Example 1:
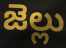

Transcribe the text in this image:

జెల్లు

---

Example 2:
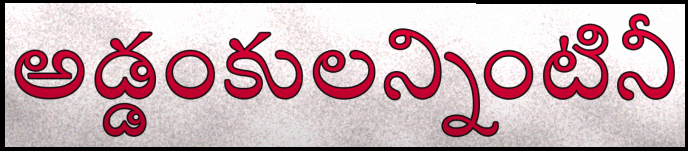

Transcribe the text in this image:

అడ్డంకులన్నింటినీ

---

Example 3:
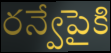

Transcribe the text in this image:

రన్వేపైకి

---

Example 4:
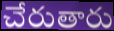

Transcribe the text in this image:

చేరుతారు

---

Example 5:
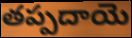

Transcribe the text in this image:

తప్పదాయె